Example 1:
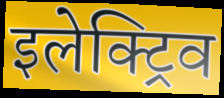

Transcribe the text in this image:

इलेक्ट्रिव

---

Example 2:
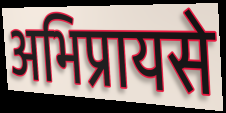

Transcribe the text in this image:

अभिप्रायसे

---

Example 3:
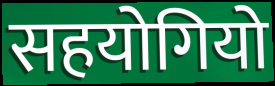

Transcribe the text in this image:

सहयोगियो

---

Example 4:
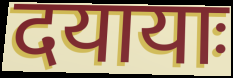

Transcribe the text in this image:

दयायाः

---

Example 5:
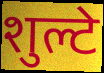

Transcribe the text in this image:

शुल्टे